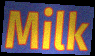
Milk